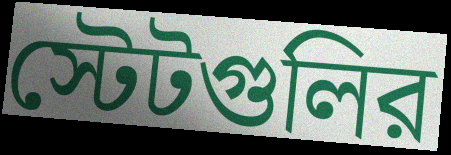
স্টেটগুলির